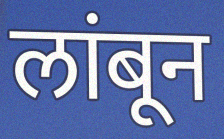
लांबून